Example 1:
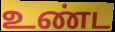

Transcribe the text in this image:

உண்ட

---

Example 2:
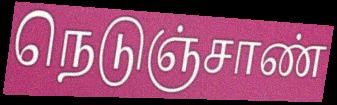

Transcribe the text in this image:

நெடுஞ்சாண்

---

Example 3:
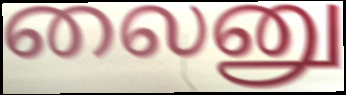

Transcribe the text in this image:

லைனு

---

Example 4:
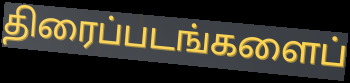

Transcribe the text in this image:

திரைப்படங்களைப்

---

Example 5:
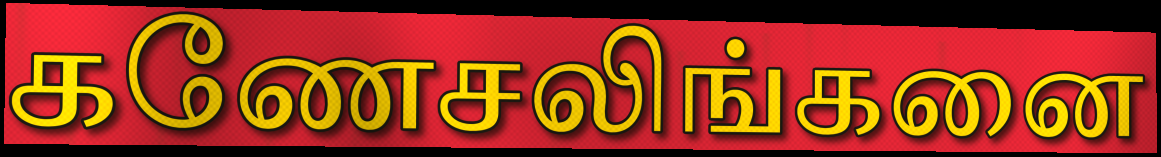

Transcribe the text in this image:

கணேசலிங்கனை